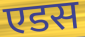
एडस